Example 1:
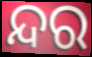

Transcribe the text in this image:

ନ୍ଦର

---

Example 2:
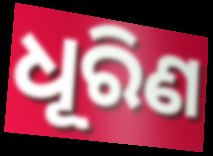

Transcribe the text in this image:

ଧୂରିଣ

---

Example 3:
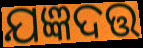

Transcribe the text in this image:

ଯଜ୍ଞଦତ୍ତ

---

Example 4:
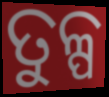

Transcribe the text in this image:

ତୁଳ୍ପ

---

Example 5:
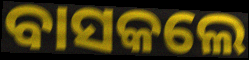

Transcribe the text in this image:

ବାସକଲେ